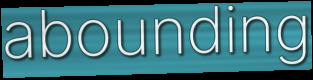
abounding